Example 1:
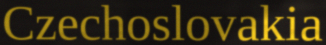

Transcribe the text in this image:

Czechoslovakia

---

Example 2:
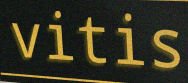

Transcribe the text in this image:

vitis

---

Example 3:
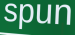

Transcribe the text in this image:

spun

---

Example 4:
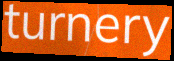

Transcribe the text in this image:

turnery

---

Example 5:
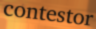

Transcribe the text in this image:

contestor